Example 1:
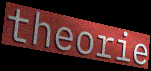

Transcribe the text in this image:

theorie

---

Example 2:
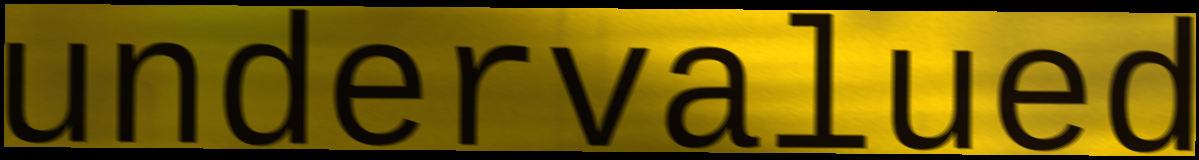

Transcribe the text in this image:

undervalued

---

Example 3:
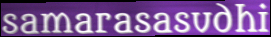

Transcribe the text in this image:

samarasasudhi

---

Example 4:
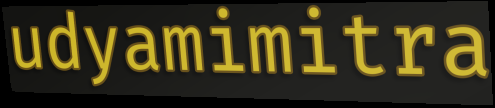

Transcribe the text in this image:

udyamimitra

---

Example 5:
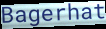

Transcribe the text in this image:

Bagerhat